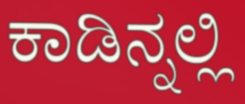
ಕಾಡಿನ್ನಲ್ಲಿ